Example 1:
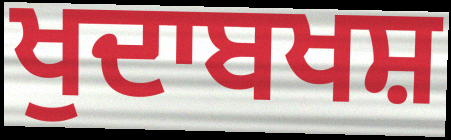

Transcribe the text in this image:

ਖੁਦਾਬਖਸ਼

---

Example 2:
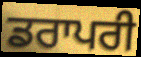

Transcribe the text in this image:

ਡਰਾਪਰੀ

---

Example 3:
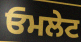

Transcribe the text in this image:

ਓਮਲੇਟ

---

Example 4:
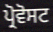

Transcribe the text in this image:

ਪ੍ਰੋਵੋਸਟ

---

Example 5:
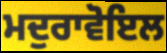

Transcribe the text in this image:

ਮਦੁਰਾਵੋਇਲ